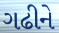
ગઢીને